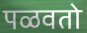
पळवतो